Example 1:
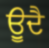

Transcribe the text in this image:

ਊੁਦੈ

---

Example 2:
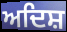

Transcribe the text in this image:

ਅਦਿਸ਼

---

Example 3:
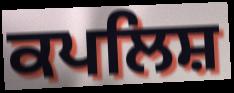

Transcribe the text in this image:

ਕਪਲਿਸ਼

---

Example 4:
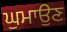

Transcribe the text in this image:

ਘੁਮਾਉਣ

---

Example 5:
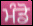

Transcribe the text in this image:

ਮੰਡੋ